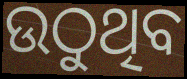
ଉଠୁଥିବ